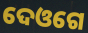
ଦେଓଗେ